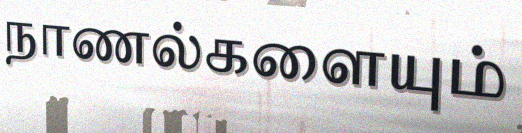
நாணல்களையும்